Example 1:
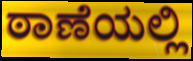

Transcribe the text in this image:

ಠಾಣೆಯಲ್ಲಿ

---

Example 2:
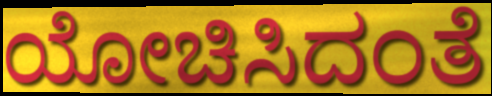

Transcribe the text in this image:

ಯೋಚಿಸಿದಂತೆ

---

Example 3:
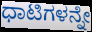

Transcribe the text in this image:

ಧಾಟಿಗಳನ್ನೇ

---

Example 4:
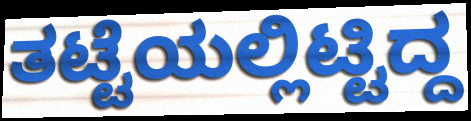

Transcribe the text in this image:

ತಟ್ಟೆಯಲ್ಲಿಟ್ಟಿದ್ದ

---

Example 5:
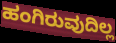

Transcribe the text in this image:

ಹಂಗಿರುವುದಿಲ್ಲ